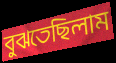
বুঝতেছিলাম